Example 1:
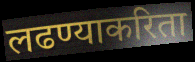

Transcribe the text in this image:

लढण्याकरिता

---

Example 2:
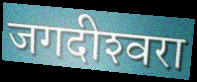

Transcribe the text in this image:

जगदीश्वरा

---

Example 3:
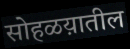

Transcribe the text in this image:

सोहळय़ातील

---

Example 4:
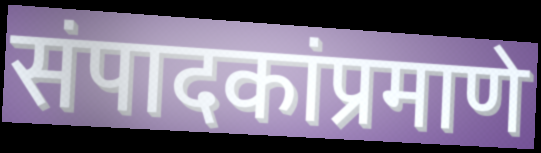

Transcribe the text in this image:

संपादकांप्रमाणे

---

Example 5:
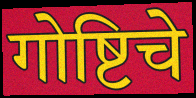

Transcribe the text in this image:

गोष्टिचे